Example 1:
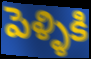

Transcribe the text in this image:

పెళ్ళికి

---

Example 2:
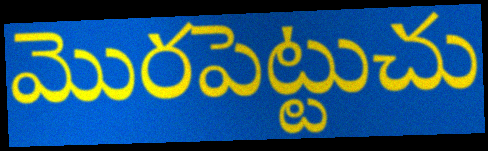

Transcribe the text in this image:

మొరపెట్టుచు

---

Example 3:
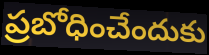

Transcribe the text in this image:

ప్రబోధించేందుకు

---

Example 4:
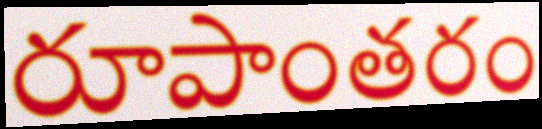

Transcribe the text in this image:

రూపాంతరం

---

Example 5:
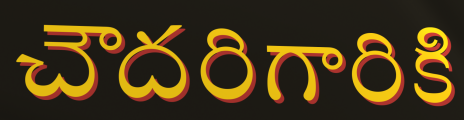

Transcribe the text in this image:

చౌదరిగారికి